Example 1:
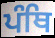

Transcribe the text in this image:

ਪੰਥਿ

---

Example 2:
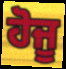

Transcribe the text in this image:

ਹੋਜੂ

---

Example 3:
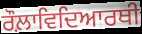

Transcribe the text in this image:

ਰੌਲ਼ਾਵਿਦਿਆਰਥੀ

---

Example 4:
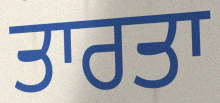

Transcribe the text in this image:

ਤਾਰਤਾ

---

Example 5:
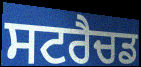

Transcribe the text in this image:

ਸਟਰੈਚਡ